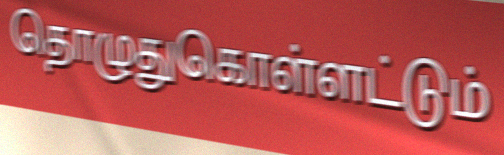
தொழுதுகொள்ளட்டும்